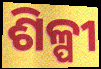
ଶିଳ୍ପୀ